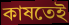
কাষতেই